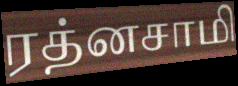
ரத்னசாமி